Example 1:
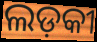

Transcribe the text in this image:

ଲଡ଼କୀ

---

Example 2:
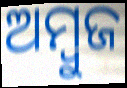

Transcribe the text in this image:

ଅମ୍ବୁଜ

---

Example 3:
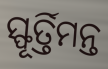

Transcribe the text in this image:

ସ୍ଫୂର୍ତ୍ତିମନ୍ତ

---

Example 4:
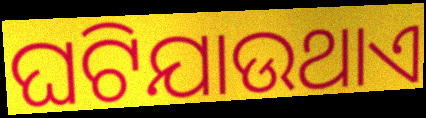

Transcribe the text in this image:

ଘଟିଯାଉଥାଏ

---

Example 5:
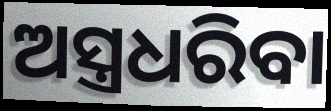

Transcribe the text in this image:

ଅସ୍ତ୍ରଧରିବା